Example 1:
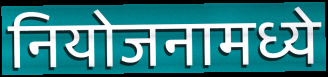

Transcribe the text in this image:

नियोजनामध्ये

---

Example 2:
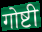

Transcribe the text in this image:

गोष्टी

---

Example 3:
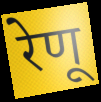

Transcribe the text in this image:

रेणू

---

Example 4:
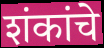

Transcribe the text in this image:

शंकांचे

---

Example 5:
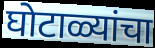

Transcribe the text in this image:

घोटाळ्यांचा